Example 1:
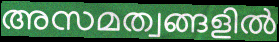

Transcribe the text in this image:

അസമത്വങ്ങളിൽ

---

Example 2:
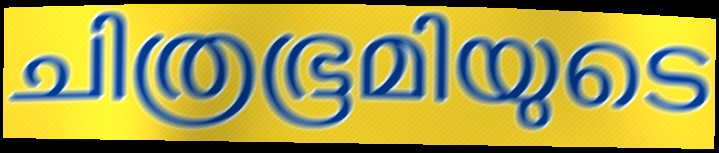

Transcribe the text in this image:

ചിത്രഭൂമിയുടെ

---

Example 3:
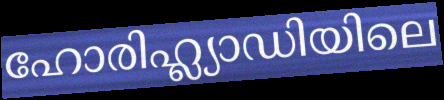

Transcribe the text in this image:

ഹോരിഹ്ല്യാഡിയിലെ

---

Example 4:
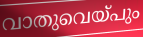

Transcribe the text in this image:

വാതുവെയ്പും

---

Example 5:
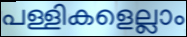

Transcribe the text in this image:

പള്ളികളെല്ലാം